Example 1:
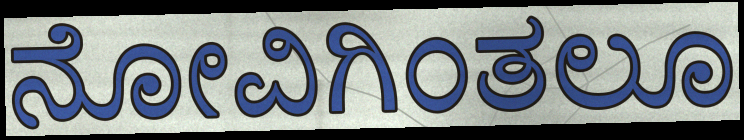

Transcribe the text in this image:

ನೋವಿಗಿಂತಲೂ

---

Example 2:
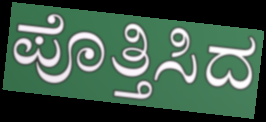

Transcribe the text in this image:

ಪೊತ್ತಿಸಿದ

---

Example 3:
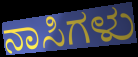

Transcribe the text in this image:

ನಾಸಿಗಳು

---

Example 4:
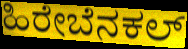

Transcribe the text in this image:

ಹಿರೇಬೆನಕಲ್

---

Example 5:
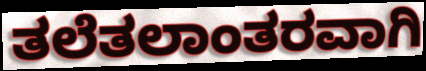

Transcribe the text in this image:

ತಲೆತಲಾಂತರವಾಗಿ